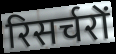
रिसर्चरों